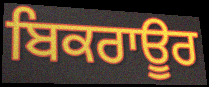
ਬਿਕਰਾਊਰ